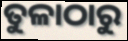
ତୁଳାଠାରୁ